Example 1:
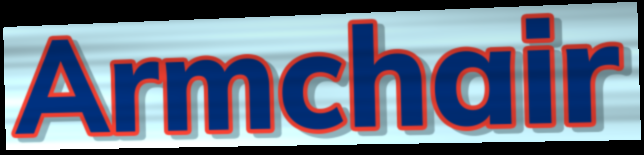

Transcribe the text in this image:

Armchair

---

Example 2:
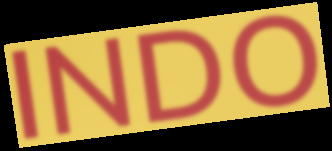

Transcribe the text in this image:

INDO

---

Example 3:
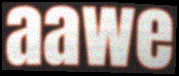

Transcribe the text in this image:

aawe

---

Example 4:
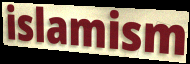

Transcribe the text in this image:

islamism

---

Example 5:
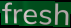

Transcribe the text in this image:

fresh